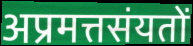
अप्रमत्तसंयतों